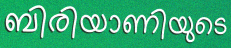
ബിരിയാണിയുടെ